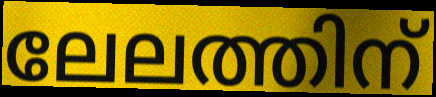
ലേലത്തിന്